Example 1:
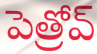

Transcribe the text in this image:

పెత్రోవ్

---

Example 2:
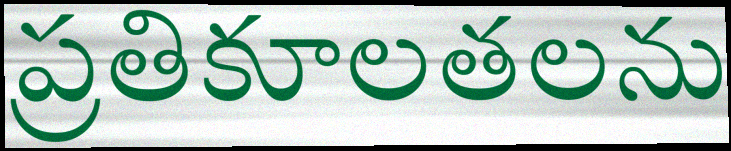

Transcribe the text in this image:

ప్రతికూలతలను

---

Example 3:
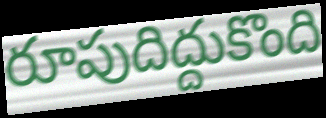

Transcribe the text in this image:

రూపుదిద్దుకొంది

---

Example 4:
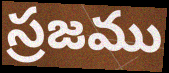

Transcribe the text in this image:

స్రజము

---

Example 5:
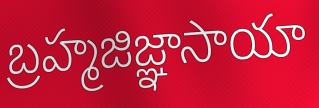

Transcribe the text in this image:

బ్రహ్మజిజ్ఞాసాయా